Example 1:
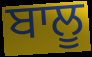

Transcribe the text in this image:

ਬਾਲੂ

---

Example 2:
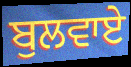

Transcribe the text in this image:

ਬੁਲਵਾਏ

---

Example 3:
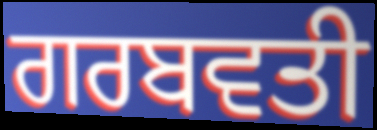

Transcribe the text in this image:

ਗਰਬਵਤੀ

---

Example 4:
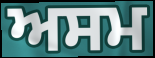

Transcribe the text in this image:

ਅਸਮ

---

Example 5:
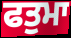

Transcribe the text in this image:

ਫਤੁਮਾ